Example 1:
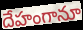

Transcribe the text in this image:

దేహంగానూ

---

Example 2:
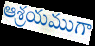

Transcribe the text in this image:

ఆశ్రయముగా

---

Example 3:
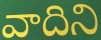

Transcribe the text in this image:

వాదిని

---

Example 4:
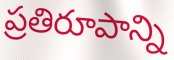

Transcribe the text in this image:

ప్రతిరూపాన్ని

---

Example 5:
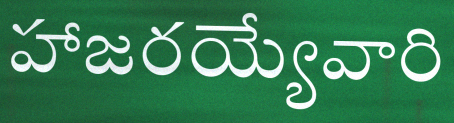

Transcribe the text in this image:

హాజరయ్యేవారి